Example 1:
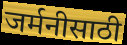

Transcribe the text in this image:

जर्मनीसाठी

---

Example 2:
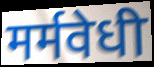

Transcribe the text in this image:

मर्मवेधी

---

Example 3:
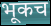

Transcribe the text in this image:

भूकच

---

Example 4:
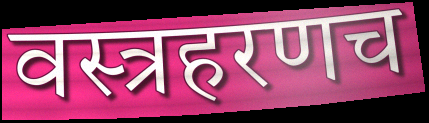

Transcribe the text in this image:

वस्त्रहरणच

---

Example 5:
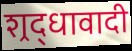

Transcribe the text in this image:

श्रद्धावादी